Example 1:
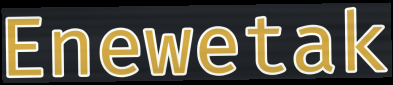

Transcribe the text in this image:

Enewetak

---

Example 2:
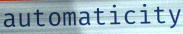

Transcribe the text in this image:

automaticity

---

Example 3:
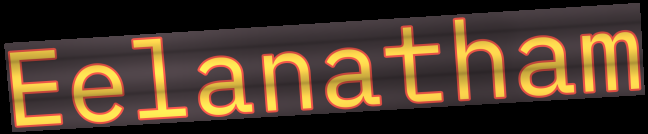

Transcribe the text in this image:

Eelanatham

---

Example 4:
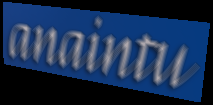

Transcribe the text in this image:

anaintu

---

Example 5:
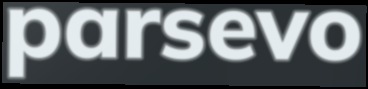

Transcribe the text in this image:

parsevo